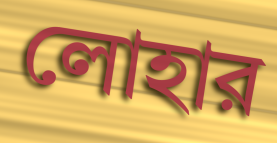
লোহার